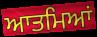
ਆਤਮਿਆਂ